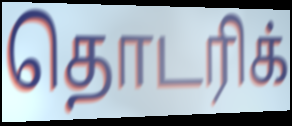
தொடரிக்